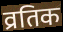
व्रतिक